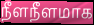
நீளநீளமாக